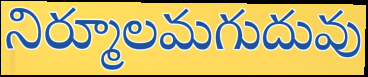
నిర్మూలమగుదువు